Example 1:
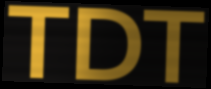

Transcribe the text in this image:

TDT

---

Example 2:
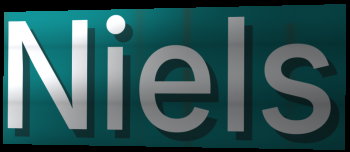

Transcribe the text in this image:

Niels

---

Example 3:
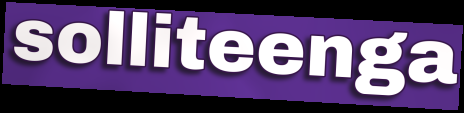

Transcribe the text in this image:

solliteenga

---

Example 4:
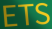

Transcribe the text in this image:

ETS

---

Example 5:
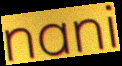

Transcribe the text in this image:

nani